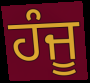
ਹੰਜੂ